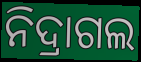
ନିଦ୍ରାଗଲ